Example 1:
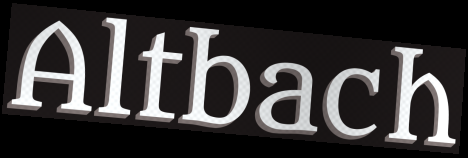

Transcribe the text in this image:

Altbach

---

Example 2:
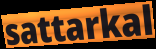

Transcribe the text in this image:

sattarkal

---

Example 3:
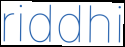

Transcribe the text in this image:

riddhi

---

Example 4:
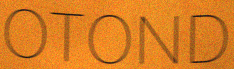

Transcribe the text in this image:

OTOND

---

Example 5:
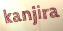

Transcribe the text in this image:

kanjira